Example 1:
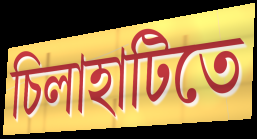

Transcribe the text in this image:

চিলাহাটিতে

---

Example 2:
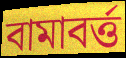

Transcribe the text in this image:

বামাবর্ত্ত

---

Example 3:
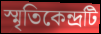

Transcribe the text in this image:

স্মৃতিকেন্দ্রটি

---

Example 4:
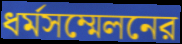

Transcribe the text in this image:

ধর্মসম্মেলনের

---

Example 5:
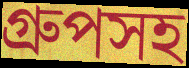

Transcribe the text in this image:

গ্রুপসহ